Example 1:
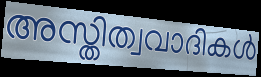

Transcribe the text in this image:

അസ്തിത്വവാദികൾ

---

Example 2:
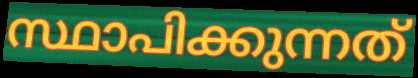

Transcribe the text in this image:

സ്ഥാപിക്കുന്നത്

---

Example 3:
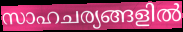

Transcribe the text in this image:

സാഹചര്യങ്ങളിൽ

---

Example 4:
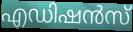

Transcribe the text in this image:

എഡിഷൻസ്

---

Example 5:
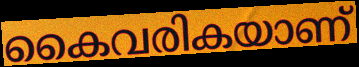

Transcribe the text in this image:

കൈവരികയാണ്